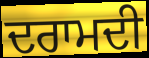
ਦਰਾਮਦੀ